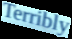
Terribly